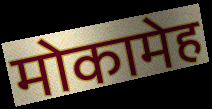
मोकामेह